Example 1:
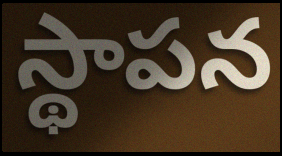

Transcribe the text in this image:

స్థాపన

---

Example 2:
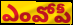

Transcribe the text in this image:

ఎంవోపీ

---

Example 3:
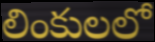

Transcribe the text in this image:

లింకులలో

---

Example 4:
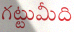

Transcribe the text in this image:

గట్టుమీది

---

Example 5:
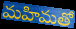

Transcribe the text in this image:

మహిమతో